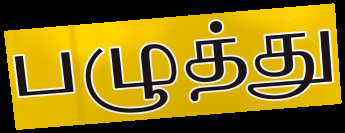
பழுத்து